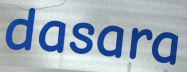
dasara